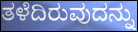
ತಳೆದಿರುವುದನ್ನು